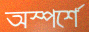
অস্পর্শে